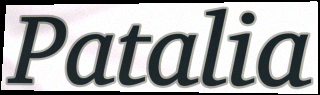
Patalia